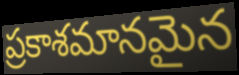
ప్రకాశమానమైన